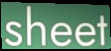
sheet